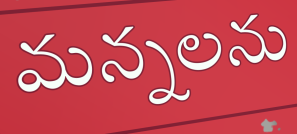
మన్నలను